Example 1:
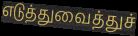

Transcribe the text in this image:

எடுத்துவைத்துச்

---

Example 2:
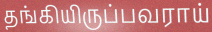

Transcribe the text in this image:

தங்கியிருப்பவராய்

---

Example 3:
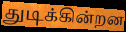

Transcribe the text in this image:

துடிக்கின்றன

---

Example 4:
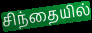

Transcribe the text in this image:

சிந்தையில்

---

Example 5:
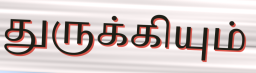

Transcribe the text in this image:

துருக்கியும்